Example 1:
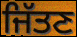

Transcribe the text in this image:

ਜਿੱਤਣ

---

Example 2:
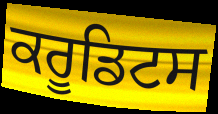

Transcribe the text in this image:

ਕਰੂਡਿਟਸ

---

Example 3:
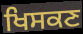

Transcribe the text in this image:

ਖਿਸਕਣ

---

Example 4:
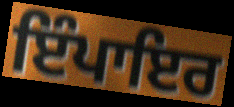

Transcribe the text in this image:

ਇੰਪਾਇਰ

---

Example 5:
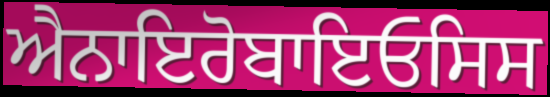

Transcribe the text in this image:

ਐਨਾਇਰੋਬਾਇਓਸਿਸ